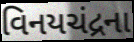
વિનયચંદ્રના